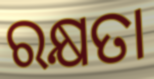
ରକ୍ଷତା